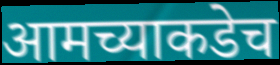
आमच्याकडेच